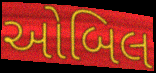
ઓબિલ